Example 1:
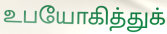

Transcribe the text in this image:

உபயோகித்துக்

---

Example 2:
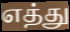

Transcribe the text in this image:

எத்து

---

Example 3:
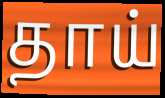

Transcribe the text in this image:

தாய்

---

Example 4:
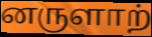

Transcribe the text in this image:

னருளாற்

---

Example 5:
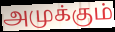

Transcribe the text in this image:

அமுக்கும்